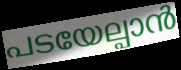
പടയേല്പാൻ